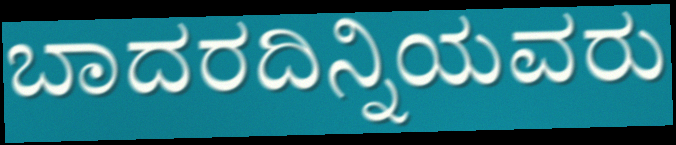
ಬಾದರದಿನ್ನಿಯವರು